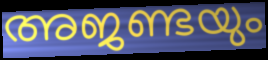
അജണ്ടയും